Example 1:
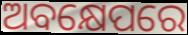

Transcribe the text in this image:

ଅବକ୍ଷେପରେ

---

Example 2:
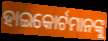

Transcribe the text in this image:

ହାଇକୋର୍ଟମାନଙ୍କୁ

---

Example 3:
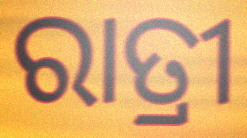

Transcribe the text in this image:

ରାତ୍ରୀ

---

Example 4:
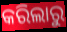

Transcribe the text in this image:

କରିଲାରୁ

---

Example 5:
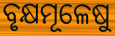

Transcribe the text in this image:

ବୃକ୍ଷମୂଳେଷୁ